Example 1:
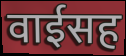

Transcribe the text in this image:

वाईसह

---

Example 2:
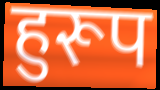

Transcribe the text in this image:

हुरूप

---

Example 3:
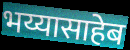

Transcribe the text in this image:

भय्यासाहेब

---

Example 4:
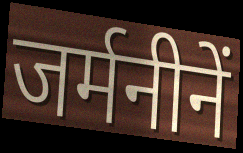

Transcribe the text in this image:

जर्मनीनें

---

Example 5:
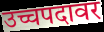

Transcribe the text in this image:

उच्चपदावर